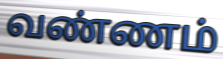
வண்ணம்